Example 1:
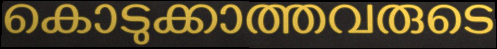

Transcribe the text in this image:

കൊടുക്കാത്തവരുടെ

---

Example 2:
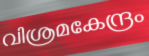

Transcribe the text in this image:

വിശ്രമകേന്ദ്രം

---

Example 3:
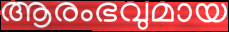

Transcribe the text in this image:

ആരംഭവുമായ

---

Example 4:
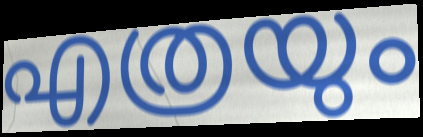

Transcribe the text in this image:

എത്രയും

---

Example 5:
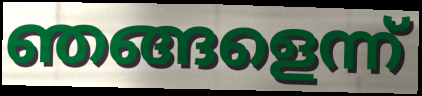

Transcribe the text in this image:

ഞങ്ങളെന്ന്